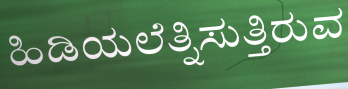
ಹಿಡಿಯಲೆತ್ನಿಸುತ್ತಿರುವ